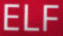
ELF